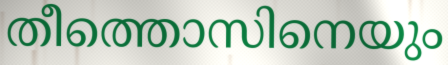
തീത്തൊസിനെയും